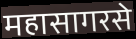
महासागरसे